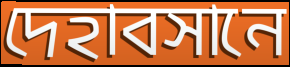
দেহাবসানে